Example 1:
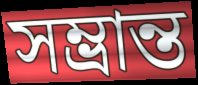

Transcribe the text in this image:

সম্ভ্ৰান্ত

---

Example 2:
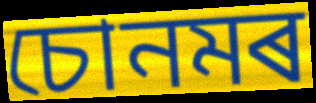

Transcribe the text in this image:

চোনমৰ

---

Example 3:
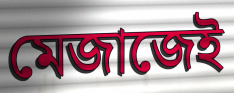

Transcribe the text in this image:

মেজাজেই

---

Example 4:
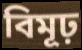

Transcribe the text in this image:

বিমূঢ়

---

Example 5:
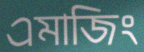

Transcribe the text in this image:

এমাজিং